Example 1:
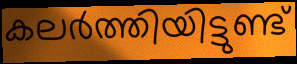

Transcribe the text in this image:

കലർത്തിയിട്ടുണ്ട്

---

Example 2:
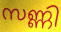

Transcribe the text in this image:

സണ്ണി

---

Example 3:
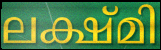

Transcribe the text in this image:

ലക്ഷ്മി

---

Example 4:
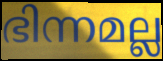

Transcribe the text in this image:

ഭിന്നമല്ല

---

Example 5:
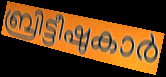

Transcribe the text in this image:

ബ്രിട്ടീഷുകാർ